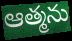
ఆత్మను